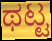
ಥಟ್ಟ